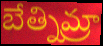
బేత్నిమ్రా